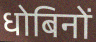
धोबिनों